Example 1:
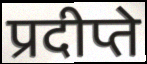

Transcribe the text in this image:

प्रदीप्ते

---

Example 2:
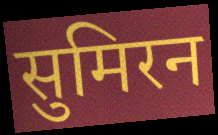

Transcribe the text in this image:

सुमिरन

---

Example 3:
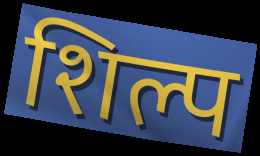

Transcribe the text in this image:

शिल्‍प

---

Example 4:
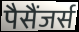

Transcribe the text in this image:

पैसैंजर्स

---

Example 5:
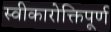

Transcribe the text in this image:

स्वीकारोक्तिपूर्ण